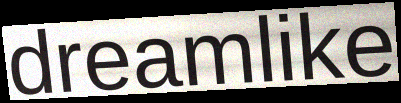
dreamlike